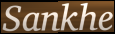
Sankhe